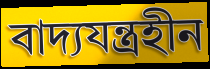
বাদ্যযন্ত্ৰহীন